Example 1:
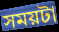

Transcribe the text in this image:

সময়টা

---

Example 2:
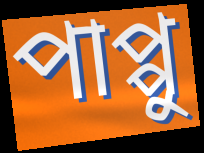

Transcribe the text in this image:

পাপ্পু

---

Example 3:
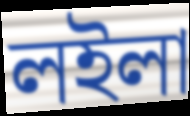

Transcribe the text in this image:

লইলা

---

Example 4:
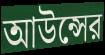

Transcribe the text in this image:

আউন্সের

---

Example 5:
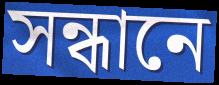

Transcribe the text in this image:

সন্ধানে